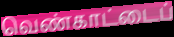
வெண்காட்டைப்